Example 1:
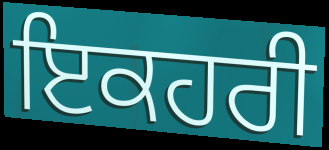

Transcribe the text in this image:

ਇਕਹਰੀ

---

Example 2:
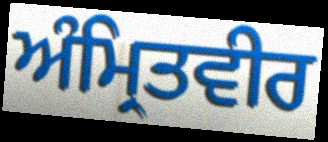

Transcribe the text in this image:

ਅੰਮ੍ਰਿਤਵੀਰ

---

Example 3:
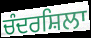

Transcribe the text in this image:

ਚੰਦਰਸ਼ਿਲਾ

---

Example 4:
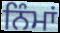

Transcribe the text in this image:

ਨਿੰਮਾਂ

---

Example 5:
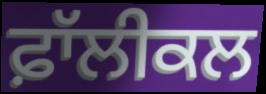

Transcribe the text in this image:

ਫ਼ਾੱਲੀਕਲ